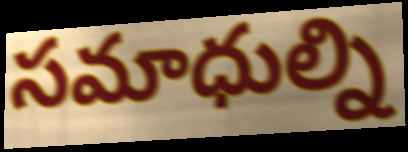
సమాధుల్ని